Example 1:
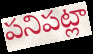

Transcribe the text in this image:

పనిపట్లా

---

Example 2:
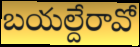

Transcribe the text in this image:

బయల్దేరావో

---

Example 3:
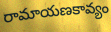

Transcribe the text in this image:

రామాయణకావ్యం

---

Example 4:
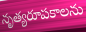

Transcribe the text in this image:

నృత్యరూపకాలను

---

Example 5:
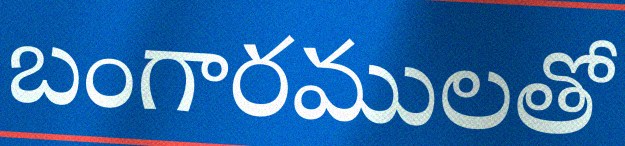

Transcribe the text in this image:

బంగారములతో